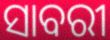
ସାବରୀ